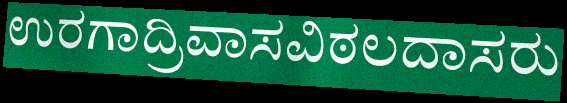
ಉರಗಾದ್ರಿವಾಸವಿಠಲದಾಸರು